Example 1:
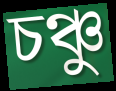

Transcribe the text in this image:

চঞ্চু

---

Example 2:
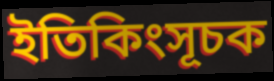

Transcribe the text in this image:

ইতিকিংসূচক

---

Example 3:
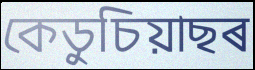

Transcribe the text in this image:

কেডুচিয়াছৰ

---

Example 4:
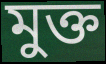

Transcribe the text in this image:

মুক্ত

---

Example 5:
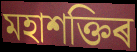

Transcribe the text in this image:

মহাশক্তিৰ